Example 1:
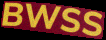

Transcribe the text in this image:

BWSS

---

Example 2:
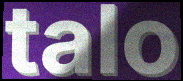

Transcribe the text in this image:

talo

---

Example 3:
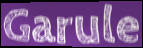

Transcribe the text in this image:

Garule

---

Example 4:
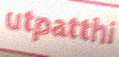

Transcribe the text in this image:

utpatthi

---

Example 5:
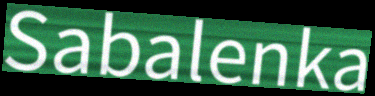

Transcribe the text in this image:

Sabalenka